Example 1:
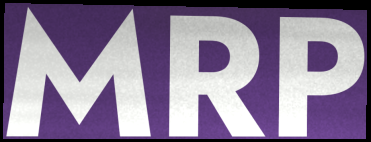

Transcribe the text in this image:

MRP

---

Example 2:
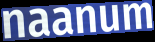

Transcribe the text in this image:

naanum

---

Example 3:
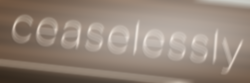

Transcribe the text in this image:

ceaselessly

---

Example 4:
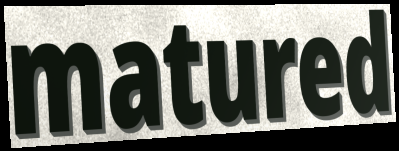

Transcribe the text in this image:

matured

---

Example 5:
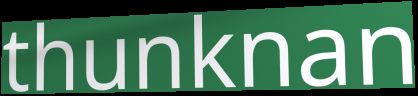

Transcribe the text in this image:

thunknan